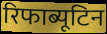
रिफाब्यूटिन